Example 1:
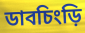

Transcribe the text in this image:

ডাবচিংড়ি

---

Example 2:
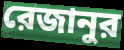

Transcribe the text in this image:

রেজানুর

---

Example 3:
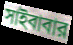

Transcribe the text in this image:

সাইবাবার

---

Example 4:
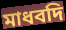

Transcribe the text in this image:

মাধবদি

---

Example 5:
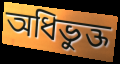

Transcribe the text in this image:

অধিভুক্ত